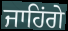
ਜਾਹਿਂਗੇ